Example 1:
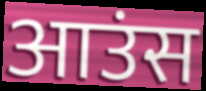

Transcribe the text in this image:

आउंस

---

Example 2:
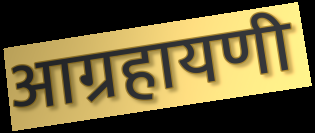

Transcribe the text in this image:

आग्रहायणी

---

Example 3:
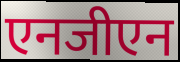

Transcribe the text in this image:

एनजीएन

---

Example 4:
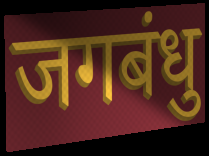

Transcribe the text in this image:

जगबंधु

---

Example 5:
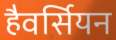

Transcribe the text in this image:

हैवर्सियन